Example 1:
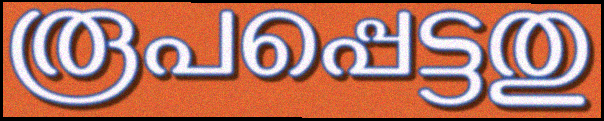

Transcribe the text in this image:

രൂപപ്പെട്ടതു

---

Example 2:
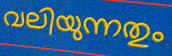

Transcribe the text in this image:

വലിയുന്നതും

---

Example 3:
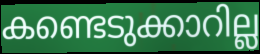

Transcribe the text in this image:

കണ്ടെടുക്കാറില്ല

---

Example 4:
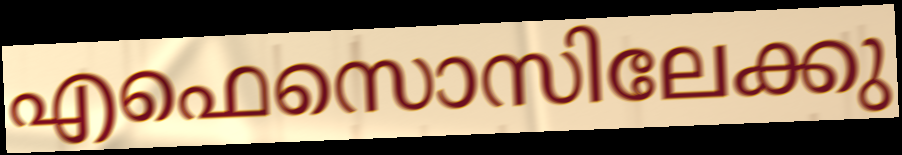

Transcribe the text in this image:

എഫെസൊസിലേക്കു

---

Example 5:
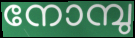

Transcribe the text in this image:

നോമ്പു